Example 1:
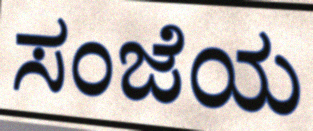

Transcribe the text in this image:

ಸಂಜೆಯ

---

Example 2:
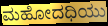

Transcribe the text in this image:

ಮಹೋದಧಿಯು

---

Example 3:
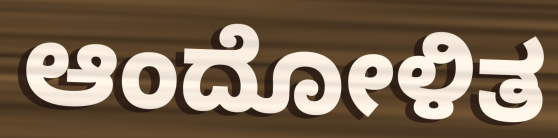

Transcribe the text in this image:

ಆಂದೋಳಿತ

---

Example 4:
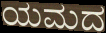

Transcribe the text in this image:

ಯಮದ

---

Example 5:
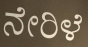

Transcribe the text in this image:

ನೇರಿಳೆ